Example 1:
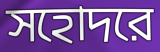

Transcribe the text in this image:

সহোদরে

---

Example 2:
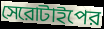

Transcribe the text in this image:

সেরোটাইপের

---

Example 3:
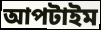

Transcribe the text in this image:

আপটাইম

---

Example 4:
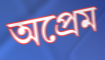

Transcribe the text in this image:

অপ্রেম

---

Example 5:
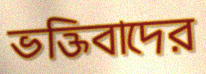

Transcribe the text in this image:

ভক্তিবাদের